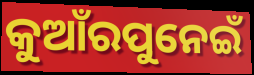
କୁଆଁରପୁନେଇଁ